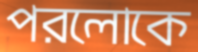
পরলোকে